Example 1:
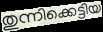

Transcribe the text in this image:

തുന്നിക്കെട്ടിയ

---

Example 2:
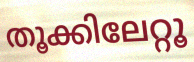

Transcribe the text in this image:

തൂക്കിലേറ്റൂ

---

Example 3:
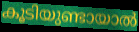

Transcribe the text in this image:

കൂടിയുണ്ടായാൽ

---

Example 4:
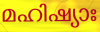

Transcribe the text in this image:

മഹിഷ്യാഃ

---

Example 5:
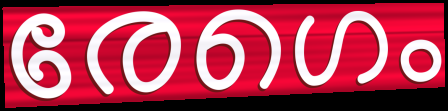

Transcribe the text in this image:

രേഗെം